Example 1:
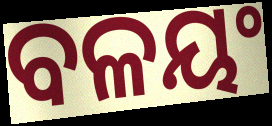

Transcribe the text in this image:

ବଳୟଂ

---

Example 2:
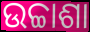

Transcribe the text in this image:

ଉଚ୍ଚାଶା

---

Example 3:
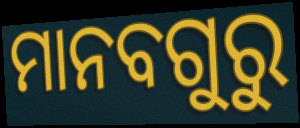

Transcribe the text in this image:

ମାନବଗୁରୁ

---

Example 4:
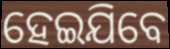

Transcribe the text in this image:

ହେଇଯିବେ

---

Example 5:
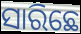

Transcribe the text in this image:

ସାରିଛେ